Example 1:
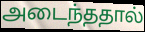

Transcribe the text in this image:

அடைந்ததால்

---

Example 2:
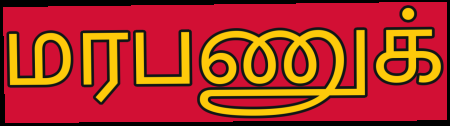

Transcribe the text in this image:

மரபணுக்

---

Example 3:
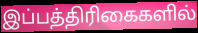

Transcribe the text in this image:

இப்பத்திரிகைகளில்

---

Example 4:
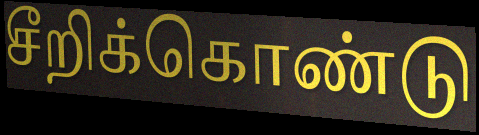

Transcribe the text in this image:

சீறிக்கொண்டு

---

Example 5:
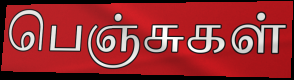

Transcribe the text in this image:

பெஞ்சுகள்